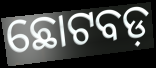
ଛୋଟବଡ଼